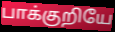
பாக்குறியே